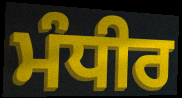
ਮੰਧੀਰ